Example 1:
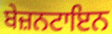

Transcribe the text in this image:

ਬੇਜ਼ਨਟਾਇਨ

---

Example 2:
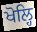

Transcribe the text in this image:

ਖੋਲ੍ਹਿ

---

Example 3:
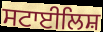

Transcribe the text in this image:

ਸਟਾਈਲਿਸ਼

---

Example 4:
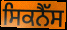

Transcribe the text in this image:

ਸਿਕਨੈੱਸ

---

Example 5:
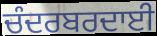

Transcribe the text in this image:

ਚੰਦਰਬਰਦਾਈ